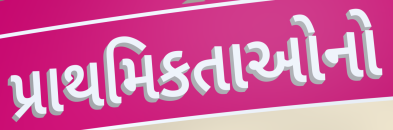
પ્રાથમિકતાઓનો